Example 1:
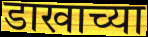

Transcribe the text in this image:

डाखाच्या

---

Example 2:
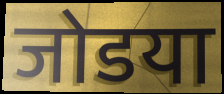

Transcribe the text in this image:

जोडया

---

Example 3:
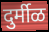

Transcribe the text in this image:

दुर्मीळ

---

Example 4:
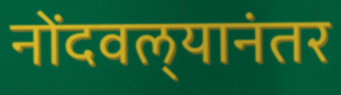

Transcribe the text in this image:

नोंदवल्यानंतर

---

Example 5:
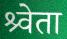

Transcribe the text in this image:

श्र्वेता